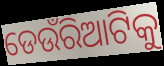
ଡେଉଁରିଆଟିକୁ